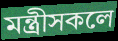
মন্ত্ৰীসকলে